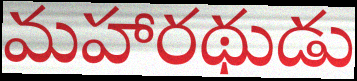
మహారథుడు